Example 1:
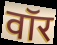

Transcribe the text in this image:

वॉर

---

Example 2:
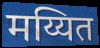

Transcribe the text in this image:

मय्यित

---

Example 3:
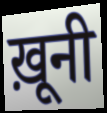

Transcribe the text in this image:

ख़ूनी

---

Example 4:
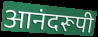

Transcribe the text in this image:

आनंदरूपी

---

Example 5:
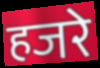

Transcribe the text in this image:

हजरे